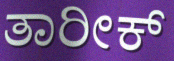
ತಾರೀಕ್